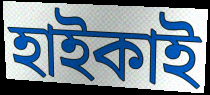
হাইকাই